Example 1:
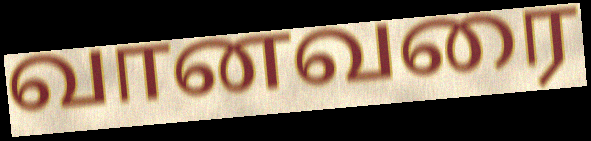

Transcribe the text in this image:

வானவரை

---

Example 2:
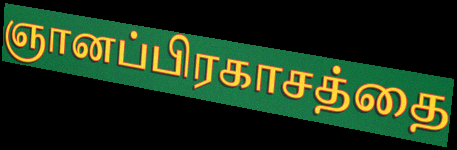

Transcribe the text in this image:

ஞானப்பிரகாசத்தை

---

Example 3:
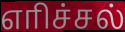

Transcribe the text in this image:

எரிச்சல்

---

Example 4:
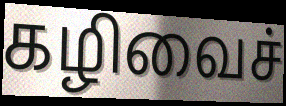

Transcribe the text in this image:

கழிவைச்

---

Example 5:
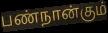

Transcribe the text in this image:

பண்நான்கும்